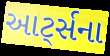
આર્ટ્સના